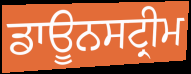
ਡਾਊਨਸਟ੍ਰੀਮ